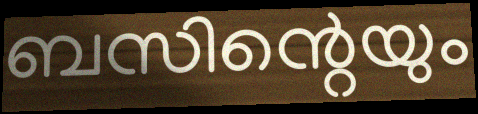
ബസിന്റെയും